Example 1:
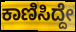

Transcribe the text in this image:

ಕಾಣಿಸಿದ್ದೇ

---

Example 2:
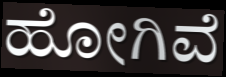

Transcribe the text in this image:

ಹೋಗಿವೆ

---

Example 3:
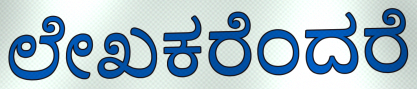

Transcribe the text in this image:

ಲೇಖಕರೆಂದರೆ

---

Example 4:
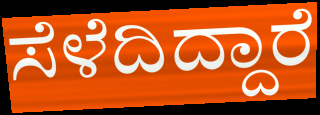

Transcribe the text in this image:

ಸೆಳೆದಿದ್ದಾರೆ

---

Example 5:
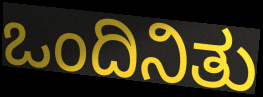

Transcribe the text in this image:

ಒಂದಿನಿತು